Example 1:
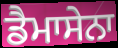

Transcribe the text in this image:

ਡੈਮਾਸੇਨਾ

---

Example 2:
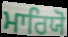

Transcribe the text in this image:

ਮਾਰਿਯੋ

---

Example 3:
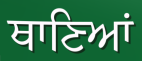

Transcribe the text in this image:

ਥਾਣਿਆਂ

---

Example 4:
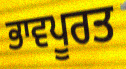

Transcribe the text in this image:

ਭਾਵਪੂਰਤ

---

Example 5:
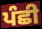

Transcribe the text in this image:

ਪੰਛੀ